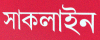
সাকলাইন